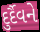
દુર્દૈવને